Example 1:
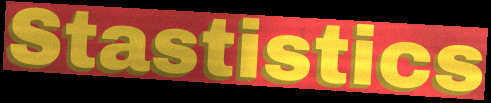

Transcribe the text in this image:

Stastistics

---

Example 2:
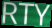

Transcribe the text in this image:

RTY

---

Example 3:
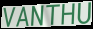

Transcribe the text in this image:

VANTHU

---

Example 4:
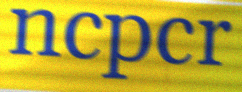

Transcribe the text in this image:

ncpcr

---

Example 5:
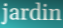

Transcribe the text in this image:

jardin